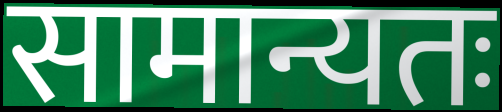
सामान्यतः